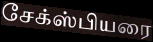
சேக்ஸ்பியரை